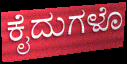
ಕೈದುಗಳೊ